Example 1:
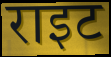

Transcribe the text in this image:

राइट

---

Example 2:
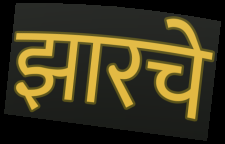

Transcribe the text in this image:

झारचे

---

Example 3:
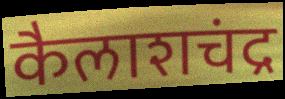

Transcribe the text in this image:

कैलाशचंद्र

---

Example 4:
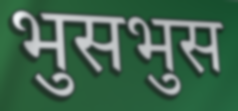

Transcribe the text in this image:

भुसभुस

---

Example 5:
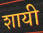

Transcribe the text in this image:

शायी